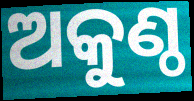
ଅକୁଣ୍ଠ